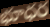
భూధర